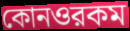
কোনওরকম